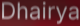
Dhairya